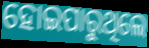
ହୋଇପାରୁଥିଲେ